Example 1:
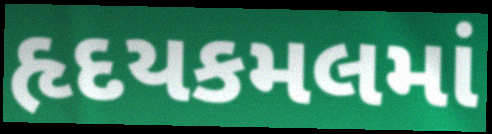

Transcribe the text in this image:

હૃદયકમલમાં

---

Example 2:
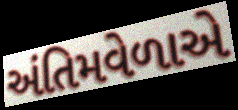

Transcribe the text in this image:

અંતિમવેળાએ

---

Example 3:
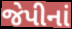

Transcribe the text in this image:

જેપીનાં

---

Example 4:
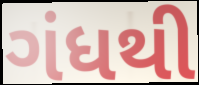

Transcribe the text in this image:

ગંધથી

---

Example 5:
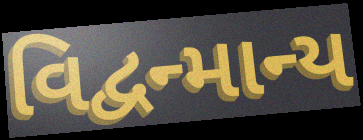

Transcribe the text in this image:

વિદ્વન્માન્ય